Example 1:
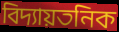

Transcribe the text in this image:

বিদ্যায়তনিক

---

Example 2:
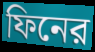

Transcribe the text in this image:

ফিনের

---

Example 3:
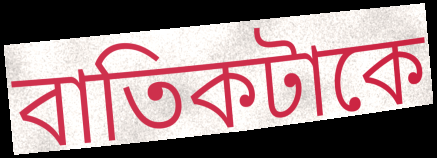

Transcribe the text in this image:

বাতিকটাকে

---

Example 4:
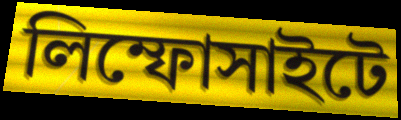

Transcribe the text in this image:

লিম্ফোসাইটে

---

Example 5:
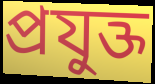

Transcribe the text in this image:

প্রযুক্ত